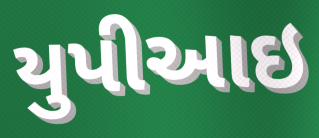
યુપીઆઇ